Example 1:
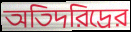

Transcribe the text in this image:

অতিদরিদ্রের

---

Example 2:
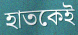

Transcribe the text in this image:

হাতকেই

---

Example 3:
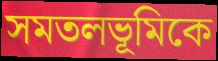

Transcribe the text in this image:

সমতলভূমিকে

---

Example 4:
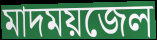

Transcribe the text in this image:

মাদময়জেল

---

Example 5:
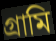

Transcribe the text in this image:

গ্রামি